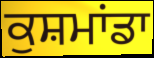
ਕੁਸ਼ਮਾਂਡਾ